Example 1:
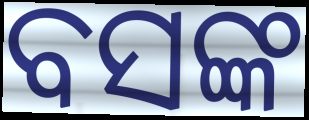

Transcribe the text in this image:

ବସଙ୍କ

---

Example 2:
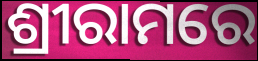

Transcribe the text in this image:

ଶ୍ରୀରାମରେ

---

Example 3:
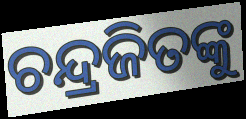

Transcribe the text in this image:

ଚନ୍ଦ୍ରଜିତଙ୍କୁ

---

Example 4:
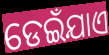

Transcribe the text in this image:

ଡେଇଁଯାଏ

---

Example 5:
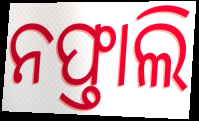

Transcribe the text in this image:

ନଫ୍ତାଲି